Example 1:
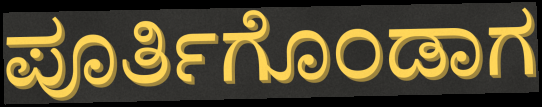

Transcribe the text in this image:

ಪೂರ್ತಿಗೊಂಡಾಗ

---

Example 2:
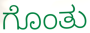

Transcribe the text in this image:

ಗೊಂತು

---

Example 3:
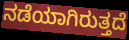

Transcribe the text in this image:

ನಡೆಯಾಗಿರುತ್ತದೆ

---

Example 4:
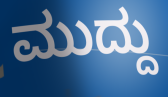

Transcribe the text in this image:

ಮುದ್ದು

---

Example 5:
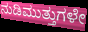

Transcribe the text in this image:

ನುಡಿಮುತ್ತುಗಳೇ